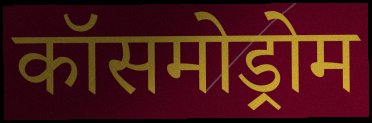
कॉसमोड्रोम